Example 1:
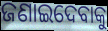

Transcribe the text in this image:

ଜଣାଇଦେବାକୁ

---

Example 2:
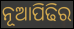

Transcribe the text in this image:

ନୂଆପିଢିର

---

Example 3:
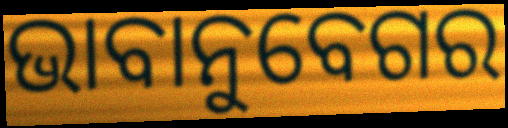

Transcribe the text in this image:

ଭାବାନୁବେଗର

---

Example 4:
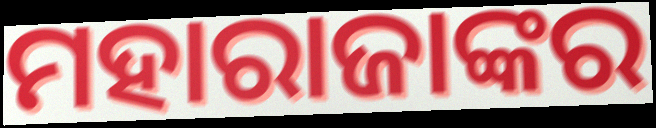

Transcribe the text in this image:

ମହାରାଜାଙ୍କର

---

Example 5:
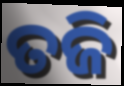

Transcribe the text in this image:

ତଜି